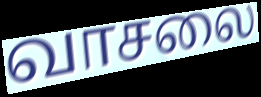
வாசலை